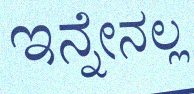
ಇನ್ನೇನಲ್ಲ